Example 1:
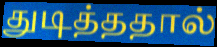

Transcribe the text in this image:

துடித்ததால்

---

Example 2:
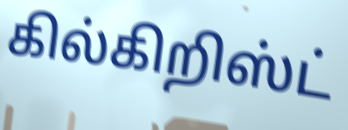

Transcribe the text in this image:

கில்கிறிஸ்ட்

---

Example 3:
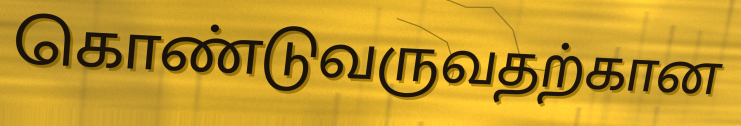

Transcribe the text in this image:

கொண்டுவருவதற்கான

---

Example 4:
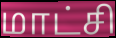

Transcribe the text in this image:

மாட்சி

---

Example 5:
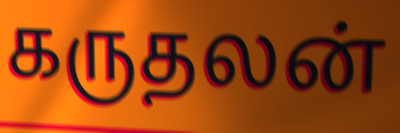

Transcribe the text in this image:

கருதலன்